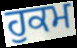
ਹੁਕਮ